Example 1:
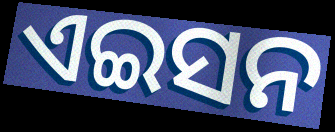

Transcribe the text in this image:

ଏଇସନ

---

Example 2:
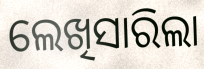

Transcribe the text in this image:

ଲେଖିସାରିଲା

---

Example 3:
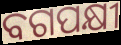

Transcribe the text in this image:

ବଗପକ୍ଷୀ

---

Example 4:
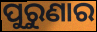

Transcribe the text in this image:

ପୁରୁଣାର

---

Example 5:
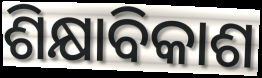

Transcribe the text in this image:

ଶିକ୍ଷାବିକାଶ